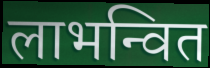
लाभन्वित